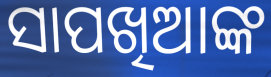
ସାପଖିଆଙ୍କ